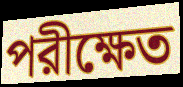
পরীক্ষেত